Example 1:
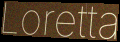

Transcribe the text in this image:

Loretta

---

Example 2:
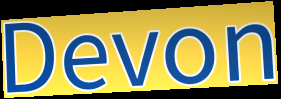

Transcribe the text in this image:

Devon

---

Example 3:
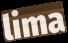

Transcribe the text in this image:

lima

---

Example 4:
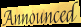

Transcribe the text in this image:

Announced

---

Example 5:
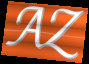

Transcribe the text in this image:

AZ